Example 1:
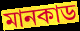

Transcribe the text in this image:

মানকাড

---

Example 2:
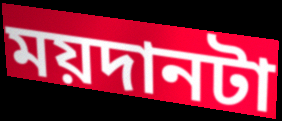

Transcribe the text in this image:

ময়দানটা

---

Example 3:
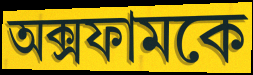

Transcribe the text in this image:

অক্সফামকে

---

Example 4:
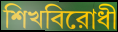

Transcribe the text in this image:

শিখবিরোধী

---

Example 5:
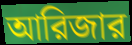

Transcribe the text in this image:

আরিজার